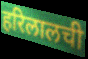
हरिलालची